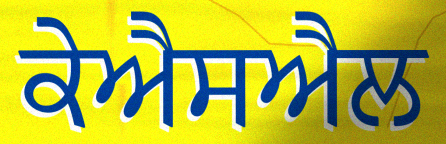
ਕੇਐਸਐਲ